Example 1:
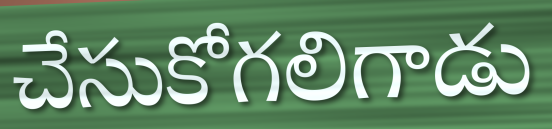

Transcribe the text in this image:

చేసుకోగలిగాడు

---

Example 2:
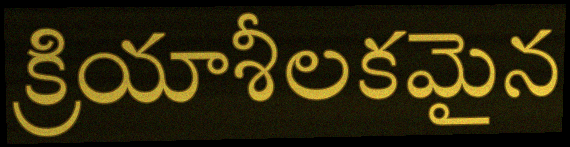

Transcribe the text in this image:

క్రియాశీలకమైన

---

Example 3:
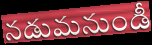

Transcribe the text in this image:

నడుమనుండీ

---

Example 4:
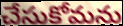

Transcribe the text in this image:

చేసుకోమను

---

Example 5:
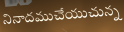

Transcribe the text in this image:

నినాదముచేయుచున్న